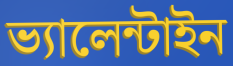
ভ্যালেন্টাইন